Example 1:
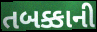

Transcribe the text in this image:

તબક્કાની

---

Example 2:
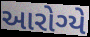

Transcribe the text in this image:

આરોગ્યે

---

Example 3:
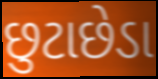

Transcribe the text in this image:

છુટાછેડા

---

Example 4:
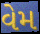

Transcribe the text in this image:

વેમ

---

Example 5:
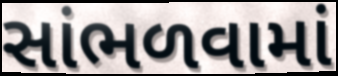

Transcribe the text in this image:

સાંભળવામાં